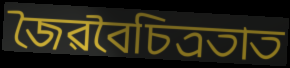
জৈৱবৈচিত্ৰতাত